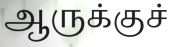
ஆருக்குச்